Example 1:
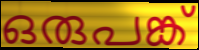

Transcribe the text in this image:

ഒരുപങ്ക്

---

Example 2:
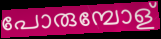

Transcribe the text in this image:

പോരുമ്പോള്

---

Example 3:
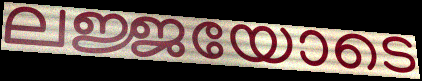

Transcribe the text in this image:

ലജ്ജയോടെ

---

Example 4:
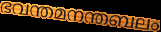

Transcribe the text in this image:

ഭവന്തമനന്തബലം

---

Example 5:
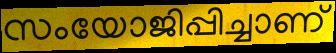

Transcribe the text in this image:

സംയോജിപ്പിച്ചാണ്